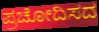
ಪ್ರಚೋದಿಸದ